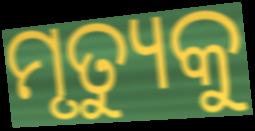
ମୃତ୍ୟୁକୁ